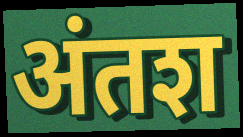
अंतश